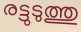
രട്ടുടുത്തു